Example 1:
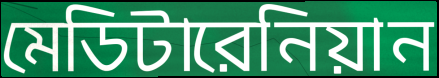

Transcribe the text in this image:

মেডিটারেনিয়ান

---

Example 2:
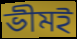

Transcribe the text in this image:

ভীমই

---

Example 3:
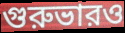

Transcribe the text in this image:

গুরুভারও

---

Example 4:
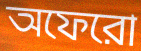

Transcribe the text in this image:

অফেরো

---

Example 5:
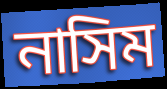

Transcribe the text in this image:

নাসিম